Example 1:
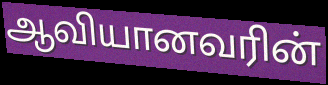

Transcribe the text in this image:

ஆவியானவரின்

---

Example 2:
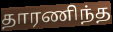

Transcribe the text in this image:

தாரணிந்த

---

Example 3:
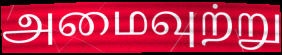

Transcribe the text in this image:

அமைவுற்று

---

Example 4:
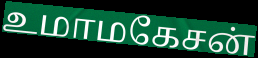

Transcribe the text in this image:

உமாமகேசன்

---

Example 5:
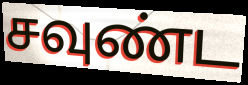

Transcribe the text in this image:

சவுண்ட